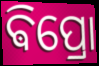
ଵିପ୍ରୋ